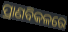
ପ୍ରାଣବିକଳରେ